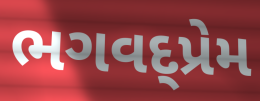
ભગવદ્પ્રેમ